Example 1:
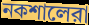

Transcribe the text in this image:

নকশালেরা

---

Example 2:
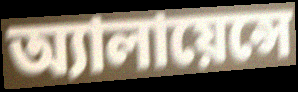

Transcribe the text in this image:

অ্যালায়েন্সে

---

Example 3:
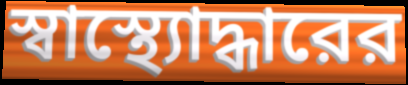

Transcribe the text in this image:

স্বাস্থ্যোদ্ধারের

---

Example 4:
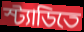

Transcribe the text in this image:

স্ট্যাডিতে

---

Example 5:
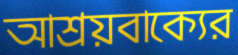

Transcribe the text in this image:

আশ্রয়বাক্যের